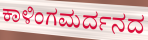
ಕಾಳಿಂಗಮರ್ದನದ